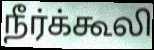
நீர்க்கூலி